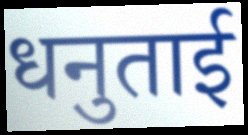
धनुताई